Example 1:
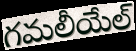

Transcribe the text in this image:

గమలీయేల్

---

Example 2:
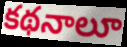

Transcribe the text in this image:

కథనాలూ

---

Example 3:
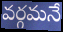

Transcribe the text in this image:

వర్గమనే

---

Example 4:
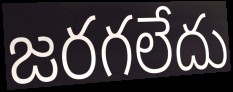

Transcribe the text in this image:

జరగలేదు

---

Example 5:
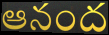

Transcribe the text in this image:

ఆనంద